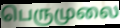
பெருமுலை